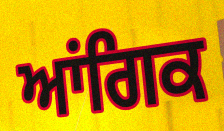
ਆਂਗਿਕ